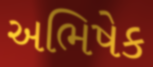
અભિષેક